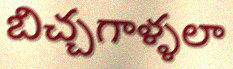
బిచ్చగాళ్ళలా